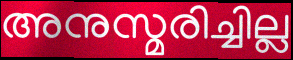
അനുസ്മരിച്ചില്ല